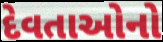
દેવતાઓનો